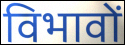
विभावों